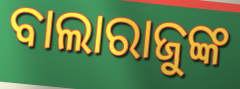
ବାଲାରାଜୁଙ୍କ